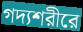
গদ্যশরীরে